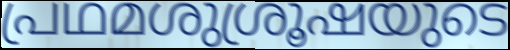
പ്രഥമശുശ്രൂഷയുടെ